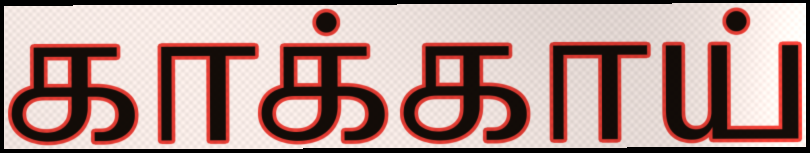
காக்காய்